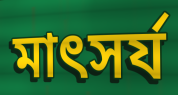
মাৎসর্য